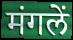
मंगलें